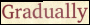
Gradually